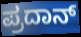
ಪ್ರದಾನ್